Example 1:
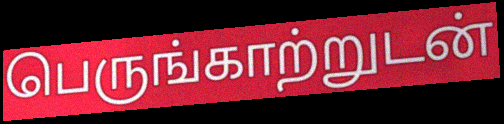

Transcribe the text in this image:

பெருங்காற்றுடன்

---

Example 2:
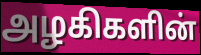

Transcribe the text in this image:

அழகிகளின்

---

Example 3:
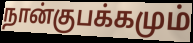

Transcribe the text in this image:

நான்குபக்கமும்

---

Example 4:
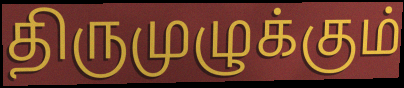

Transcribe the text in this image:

திருமுழுக்கும்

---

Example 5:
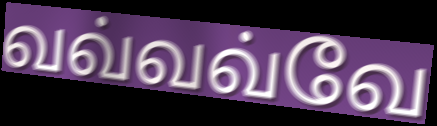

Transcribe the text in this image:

வவ்வவ்வே